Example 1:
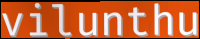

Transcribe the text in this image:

vilunthu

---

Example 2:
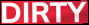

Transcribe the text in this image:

DIRTY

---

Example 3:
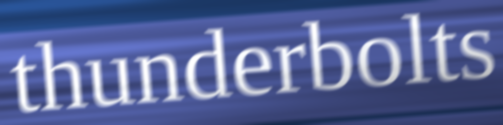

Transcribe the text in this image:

thunderbolts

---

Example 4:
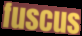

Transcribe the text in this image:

fuscus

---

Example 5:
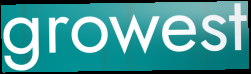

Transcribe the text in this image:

growest